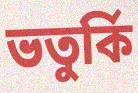
ভতুর্কি